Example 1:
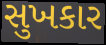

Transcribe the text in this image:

સુખકાર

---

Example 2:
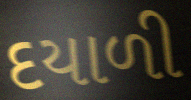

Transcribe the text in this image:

દયાળી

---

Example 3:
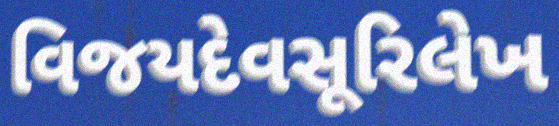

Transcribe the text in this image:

વિજયદેવસૂરિલેખ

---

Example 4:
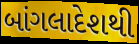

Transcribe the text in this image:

બાંગલાદેશથી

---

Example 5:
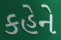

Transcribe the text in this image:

કહેને